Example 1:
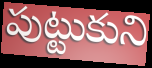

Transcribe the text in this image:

పుట్టుకుని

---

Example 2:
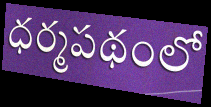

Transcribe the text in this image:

ధర్మపథంలో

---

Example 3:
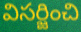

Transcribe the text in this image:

విసర్జించి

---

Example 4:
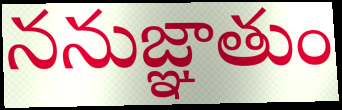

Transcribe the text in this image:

ననుజ్ఞాతుం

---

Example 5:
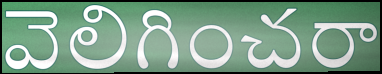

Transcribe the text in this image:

వెలిగించరా